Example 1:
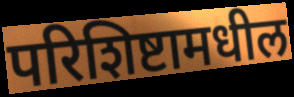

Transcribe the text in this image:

परिशिष्टामधील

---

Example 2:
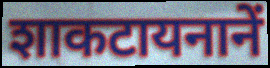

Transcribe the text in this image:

शाकटायनानें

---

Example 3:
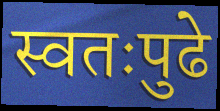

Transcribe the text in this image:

स्वतःपुढे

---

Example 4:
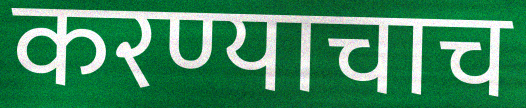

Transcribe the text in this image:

करण्याचाच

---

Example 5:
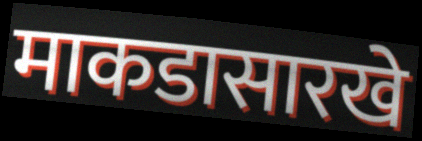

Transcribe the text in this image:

माकडासारखे